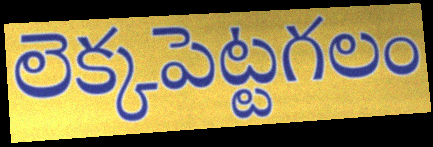
లెక్కపెట్టగలం